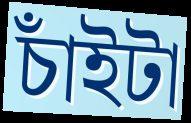
চাঁইটা